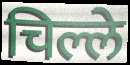
चिल्ले